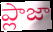
ప్లాజా